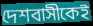
দেশবাসীকেই